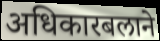
अधिकारबलाने